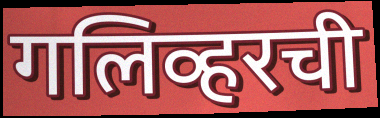
गलिव्हरची